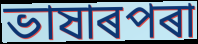
ভাষাৰপৰা